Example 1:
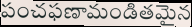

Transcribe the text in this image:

పంచఫణామండితమైన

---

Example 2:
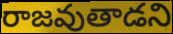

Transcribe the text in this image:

రాజవుతాడని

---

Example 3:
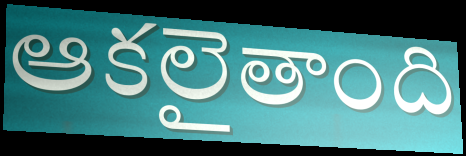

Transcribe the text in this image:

ఆకలైతాంది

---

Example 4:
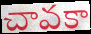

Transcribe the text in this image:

చావకా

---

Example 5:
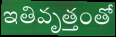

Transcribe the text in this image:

ఇతివృత్తంతో